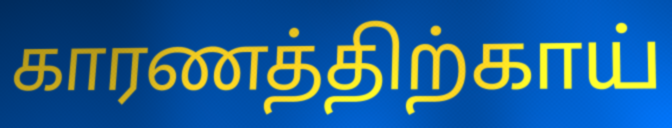
காரணத்திற்காய்